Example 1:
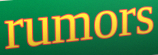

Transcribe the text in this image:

rumors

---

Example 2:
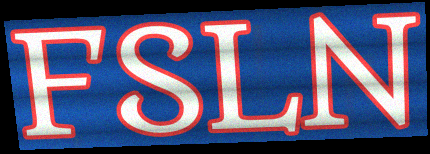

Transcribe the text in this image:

FSLN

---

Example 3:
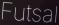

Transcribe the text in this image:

Futsal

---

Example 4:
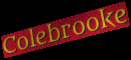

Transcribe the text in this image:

Colebrooke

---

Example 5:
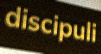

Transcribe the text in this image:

discipuli